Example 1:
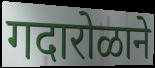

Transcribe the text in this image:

गदारोळाने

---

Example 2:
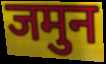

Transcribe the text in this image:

जमुन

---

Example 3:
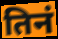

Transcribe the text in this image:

तिनं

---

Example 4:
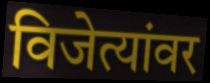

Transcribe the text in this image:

विजेत्यांवर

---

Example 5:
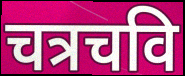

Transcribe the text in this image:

चत्रचवि